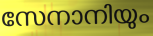
സേനാനിയും